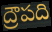
ద్రౌపది